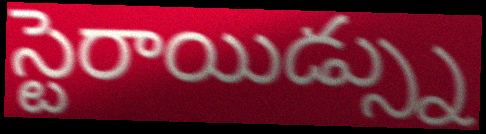
స్టెరాయిడ్స్ను